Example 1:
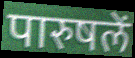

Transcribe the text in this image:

पारुषलें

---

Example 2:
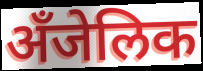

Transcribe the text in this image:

अँजेलिक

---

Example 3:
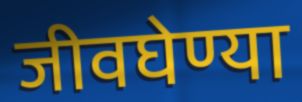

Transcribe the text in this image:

जीवघेण्या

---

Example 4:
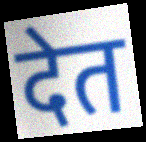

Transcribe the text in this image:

देत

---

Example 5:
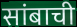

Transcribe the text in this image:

सांबाची